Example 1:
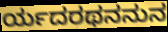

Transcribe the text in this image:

ರ್ಯದರಥನನುನ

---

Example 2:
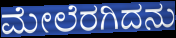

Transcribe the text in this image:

ಮೇಲೆರಗಿದನು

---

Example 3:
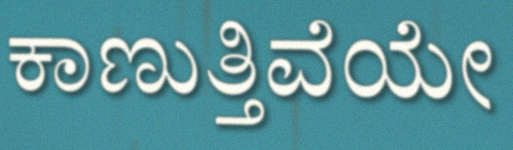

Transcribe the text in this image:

ಕಾಣುತ್ತಿವೆಯೇ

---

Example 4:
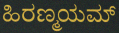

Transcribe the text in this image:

ಹಿರಣ್ಮಯಮ್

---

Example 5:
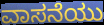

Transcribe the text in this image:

ವಾಸನೆಯು